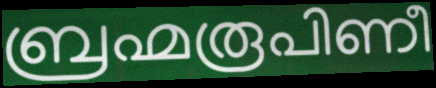
ബ്രഹ്മരൂപിണീ